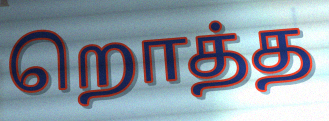
றொத்த